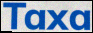
Taxa